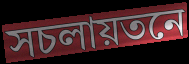
সচলায়তনে